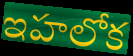
ఇహలోక